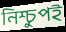
নিশ্চুপই